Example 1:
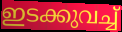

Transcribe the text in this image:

ഇടക്കുവച്ച്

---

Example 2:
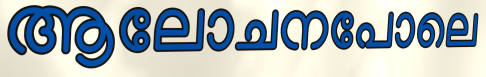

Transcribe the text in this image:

ആലോചനപോലെ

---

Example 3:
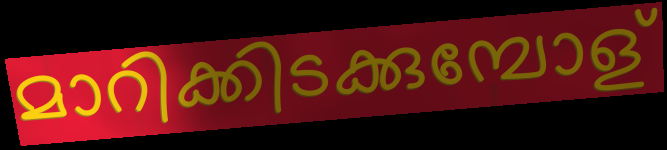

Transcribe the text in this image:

മാറിക്കിടക്കുമ്പോള്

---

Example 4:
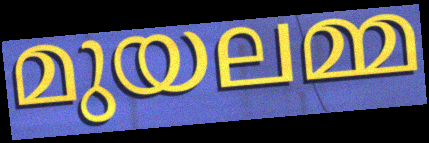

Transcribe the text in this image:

മുയലമ്മ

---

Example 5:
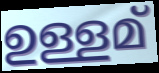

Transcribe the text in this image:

ഉള്ളമ്